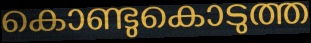
കൊണ്ടുകൊടുത്ത